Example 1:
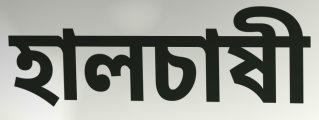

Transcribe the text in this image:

হালচাষী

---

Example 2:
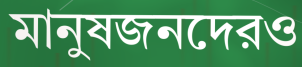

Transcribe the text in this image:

মানুষজনদেরও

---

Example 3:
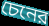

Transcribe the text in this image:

চেনের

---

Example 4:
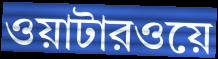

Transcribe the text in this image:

ওয়াটারওয়ে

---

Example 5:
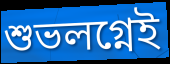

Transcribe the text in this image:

শুভলগ্নেই